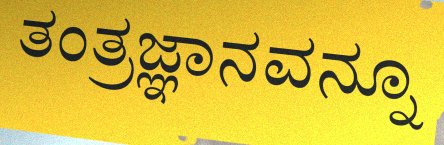
ತಂತ್ರಜ್ಞಾನವನ್ನೂ